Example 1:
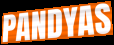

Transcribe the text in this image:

PANDYAS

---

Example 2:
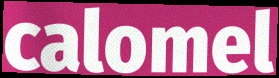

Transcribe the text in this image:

calomel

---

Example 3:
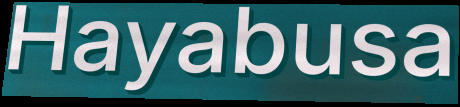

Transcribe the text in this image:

Hayabusa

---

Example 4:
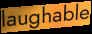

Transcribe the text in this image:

laughable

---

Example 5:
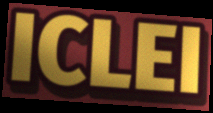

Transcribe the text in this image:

ICLEI